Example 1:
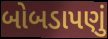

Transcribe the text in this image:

બોબડાપણું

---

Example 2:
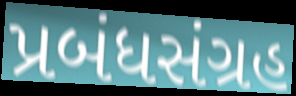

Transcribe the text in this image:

પ્રબંધસંગ્રહ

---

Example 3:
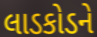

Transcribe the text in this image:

લાડકોડને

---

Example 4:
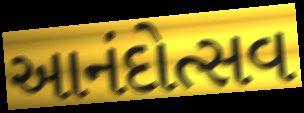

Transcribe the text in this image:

આનંદોત્સવ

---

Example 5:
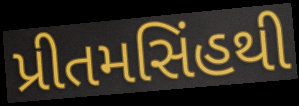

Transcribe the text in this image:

પ્રીતમસિંહથી